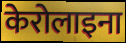
केरोलाइना